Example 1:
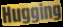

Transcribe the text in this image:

Hugging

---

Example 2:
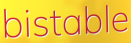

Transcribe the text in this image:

bistable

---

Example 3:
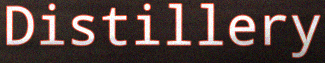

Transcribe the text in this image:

Distillery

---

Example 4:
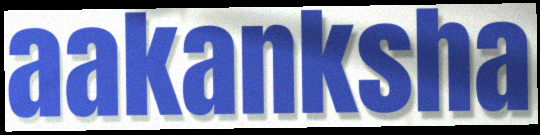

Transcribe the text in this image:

aakanksha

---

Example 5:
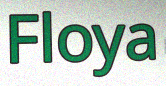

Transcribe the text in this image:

Floya